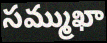
సమ్ముఖా